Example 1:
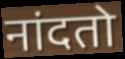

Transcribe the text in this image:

नांदतो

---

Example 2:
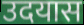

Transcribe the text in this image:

उदयास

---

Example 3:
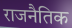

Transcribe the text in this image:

राजनैतिक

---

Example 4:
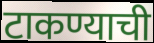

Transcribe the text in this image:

टाकण्याची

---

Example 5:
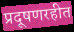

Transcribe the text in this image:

प्रदूषणरहीत